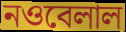
নওবেলাল